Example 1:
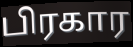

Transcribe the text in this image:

பிரகார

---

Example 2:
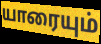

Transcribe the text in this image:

யாரையும்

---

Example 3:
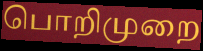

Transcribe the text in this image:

பொறிமுறை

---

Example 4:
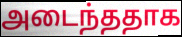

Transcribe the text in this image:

அடைந்ததாக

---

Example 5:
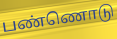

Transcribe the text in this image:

பண்ணொடு